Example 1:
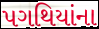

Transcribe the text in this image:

પગથિયાંના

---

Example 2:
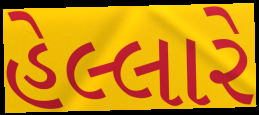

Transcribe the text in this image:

હેલ્લારે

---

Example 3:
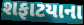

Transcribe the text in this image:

શફાટયાના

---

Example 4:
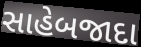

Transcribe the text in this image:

સાહેબજાદા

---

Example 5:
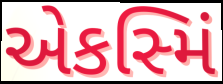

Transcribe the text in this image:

એકસ્મિં